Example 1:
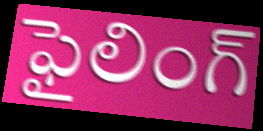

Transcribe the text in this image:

ఫైలింగ్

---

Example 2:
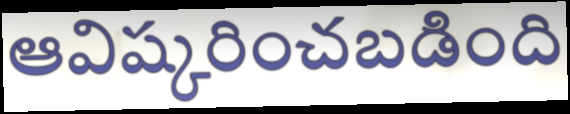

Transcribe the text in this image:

ఆవిష్కరించబడింది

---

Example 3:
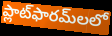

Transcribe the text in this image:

ప్లాట్‌ఫారమ్‌లలో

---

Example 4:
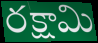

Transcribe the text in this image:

రక్షామి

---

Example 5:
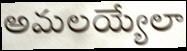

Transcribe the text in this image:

అమలయ్యేలా